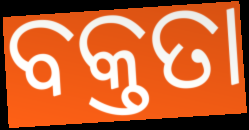
ବକ୍ତତା